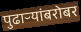
पुढाऱ्यांबरोबर